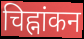
चिह्नांकन